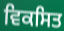
ਵਿਕਸਿਤ